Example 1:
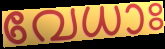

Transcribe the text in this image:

വേധാഃ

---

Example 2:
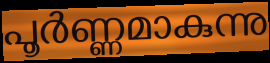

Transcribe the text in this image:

പൂർണ്ണമാകുന്നു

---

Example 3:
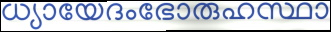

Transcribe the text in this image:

ധ്യായേദംഭോരുഹസ്ഥാ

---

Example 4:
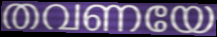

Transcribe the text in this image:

തവണയേ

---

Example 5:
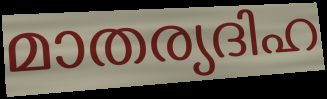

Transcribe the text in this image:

മാതര്യദിഹ